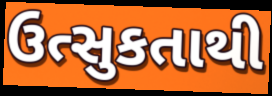
ઉત્સુકતાથી